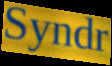
Syndr